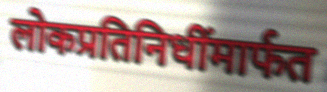
लोकप्रतिनिधींमार्फत